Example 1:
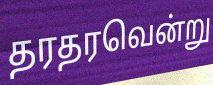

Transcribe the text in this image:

தரதரவென்று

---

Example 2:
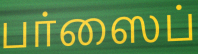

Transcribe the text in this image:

பர்ஸைப்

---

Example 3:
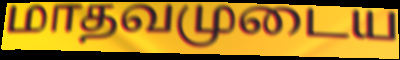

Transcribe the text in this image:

மாதவமுடைய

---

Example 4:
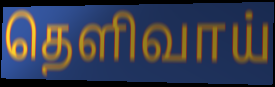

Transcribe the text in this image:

தெளிவாய்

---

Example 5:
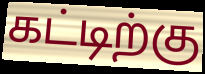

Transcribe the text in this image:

கட்டிற்கு